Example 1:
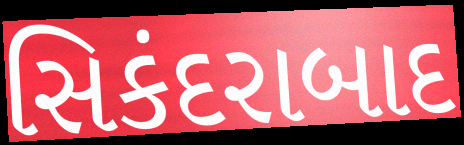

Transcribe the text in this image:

સિકંદરાબાદ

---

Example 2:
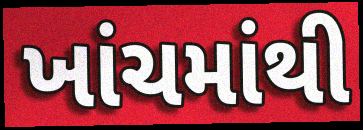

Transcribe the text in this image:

ખાંચમાંથી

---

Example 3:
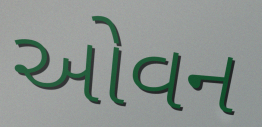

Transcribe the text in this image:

ઓવન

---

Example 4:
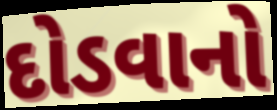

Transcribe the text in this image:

દોડવાનો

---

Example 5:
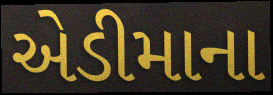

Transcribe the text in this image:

એડીમાના